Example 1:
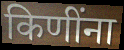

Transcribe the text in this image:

किणींना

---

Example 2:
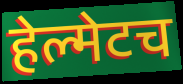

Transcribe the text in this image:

हेल्मेटच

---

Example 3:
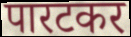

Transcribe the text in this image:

पारटकर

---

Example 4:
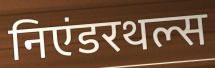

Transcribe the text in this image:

निएंडरथल्स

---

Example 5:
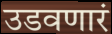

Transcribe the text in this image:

उडवणारं